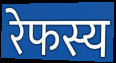
रेफस्य